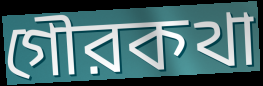
গৌরকথা